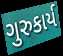
ગુરુકાર્ય